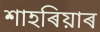
শাহৰিয়াৰ